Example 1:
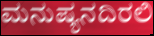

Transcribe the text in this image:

ಮನುಷ್ಯನದಿರಲಿ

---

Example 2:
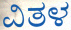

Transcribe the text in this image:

ವಿತಳ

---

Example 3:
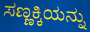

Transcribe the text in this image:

ಸಣ್ಣಕ್ಕಿಯನ್ನು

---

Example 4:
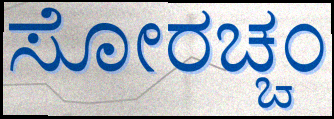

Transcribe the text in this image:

ಸೋರಚ್ಚಂ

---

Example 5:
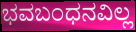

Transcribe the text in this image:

ಭವಬಂಧನವಿಲ್ಲ